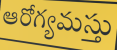
ఆరోగ్యమస్తు